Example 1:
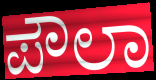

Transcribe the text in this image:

ಪೌಲಾ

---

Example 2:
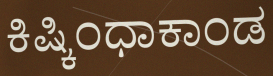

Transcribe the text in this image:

ಕಿಷ್ಕಿಂಧಾಕಾಂಡ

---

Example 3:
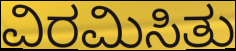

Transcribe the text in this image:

ವಿರಮಿಸಿತು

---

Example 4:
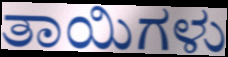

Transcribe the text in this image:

ತಾಯಿಗಳು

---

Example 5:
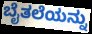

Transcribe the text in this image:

ಬೈತಲೆಯನ್ನು